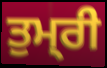
ਤੁਮ੍‍ਰੀ